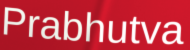
Prabhutva